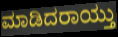
ಮಾಡಿದರಾಯ್ತು